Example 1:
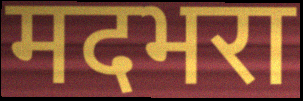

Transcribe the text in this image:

मदभरा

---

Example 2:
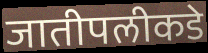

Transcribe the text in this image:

जातीपलीकडे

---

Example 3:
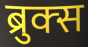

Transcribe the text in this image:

ब्रुक्‍स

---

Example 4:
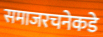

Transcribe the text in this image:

समाजरचनेकडे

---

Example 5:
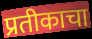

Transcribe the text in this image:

प्रतीकाचा